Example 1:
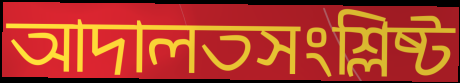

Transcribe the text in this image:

আদালতসংশ্লিষ্ট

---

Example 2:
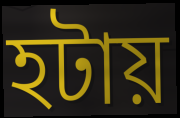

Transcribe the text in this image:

হটায়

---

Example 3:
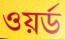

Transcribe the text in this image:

ওয়র্ড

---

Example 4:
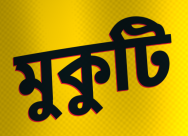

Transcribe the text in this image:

মুকুটি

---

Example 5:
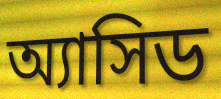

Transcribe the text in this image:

অ্যাসিড